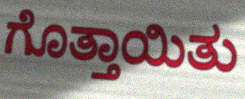
ಗೊತ್ತಾಯಿತು